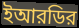
ইআরডির